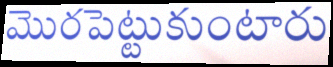
మొరపెట్టుకుంటారు